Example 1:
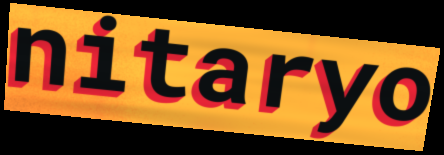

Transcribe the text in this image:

nitaryo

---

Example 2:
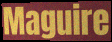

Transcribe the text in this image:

Maguire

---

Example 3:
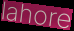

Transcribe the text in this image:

lahore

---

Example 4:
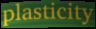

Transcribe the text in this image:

plasticity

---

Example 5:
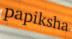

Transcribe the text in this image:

papiksha